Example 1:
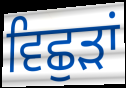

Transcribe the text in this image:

ਵਿਛੁੜਾਂ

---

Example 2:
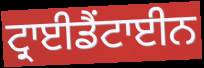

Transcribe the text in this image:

ਟ੍ਰਾਈਡੈਂਟਾਈਨ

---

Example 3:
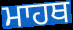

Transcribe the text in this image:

ਮਾਹਥ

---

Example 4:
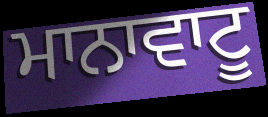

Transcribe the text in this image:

ਮਾਨਾਵਾਟੂ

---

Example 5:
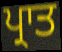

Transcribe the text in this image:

ਪ੍ਰਾਤ